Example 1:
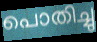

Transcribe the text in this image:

പൊതിച്ചു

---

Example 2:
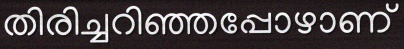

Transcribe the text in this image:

തിരിച്ചറിഞ്ഞപ്പോഴാണ്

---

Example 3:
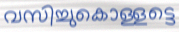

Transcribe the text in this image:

വസിച്ചുകൊള്ളട്ടെ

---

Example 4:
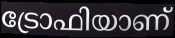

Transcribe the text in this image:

ട്രോഫിയാണ്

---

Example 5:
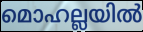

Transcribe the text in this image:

മൊഹല്ലയിൽ